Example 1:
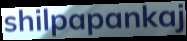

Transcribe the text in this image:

shilpapankaj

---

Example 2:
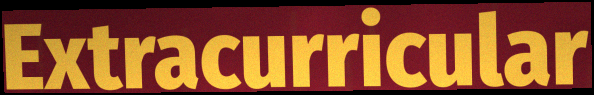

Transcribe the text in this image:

Extracurricular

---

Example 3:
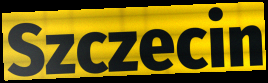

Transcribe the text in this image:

Szczecin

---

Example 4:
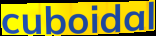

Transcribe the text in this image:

cuboidal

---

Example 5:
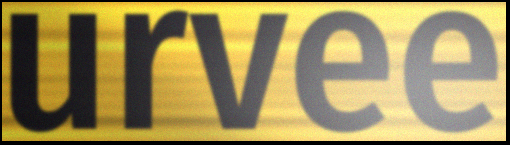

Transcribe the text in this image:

urvee